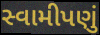
સ્વામીપણું